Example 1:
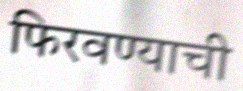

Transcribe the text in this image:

फिरवण्याची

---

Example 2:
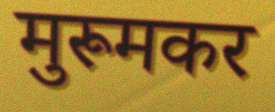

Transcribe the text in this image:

मुरूमकर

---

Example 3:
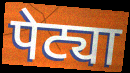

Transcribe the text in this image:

पेट्या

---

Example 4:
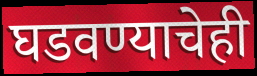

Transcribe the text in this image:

घडवण्याचेही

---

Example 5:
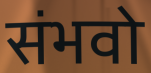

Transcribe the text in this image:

संभवो